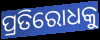
ପ୍ରତିରୋଧକୁ